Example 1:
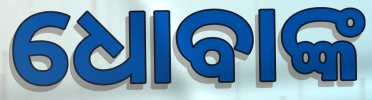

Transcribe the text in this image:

ଧୋବାଙ୍କ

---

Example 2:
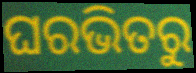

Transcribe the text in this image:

ଘରଭିତରୁ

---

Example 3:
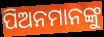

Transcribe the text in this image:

ପିଅନମାନଙ୍କୁ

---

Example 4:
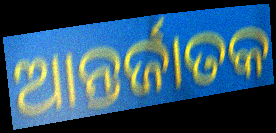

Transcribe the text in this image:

ଆନ୍ତର୍ଜାତକ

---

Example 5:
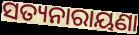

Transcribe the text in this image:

ସତ୍ୟନାରାୟଣା